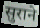
सुराने